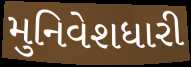
મુનિવેશધારી